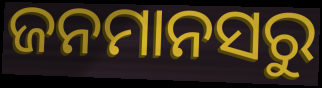
ଜନମାନସରୁ